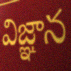
విజ్ఞాన